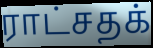
ராட்சதக்